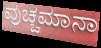
ವುಚ್ಚಮಾನಾ